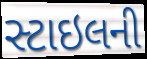
સ્ટાઇલની